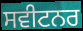
ਸਵੀਟਨਰ